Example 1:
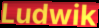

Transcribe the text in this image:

Ludwik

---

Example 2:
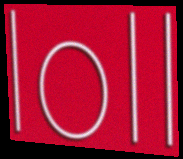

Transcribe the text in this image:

loll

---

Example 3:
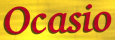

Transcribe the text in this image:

Ocasio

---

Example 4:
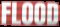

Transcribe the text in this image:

FLOOD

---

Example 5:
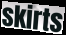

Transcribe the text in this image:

skirts